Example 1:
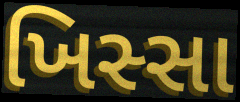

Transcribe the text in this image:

ખિસ્સા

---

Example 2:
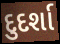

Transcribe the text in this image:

દુદર્શા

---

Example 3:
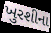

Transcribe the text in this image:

ખુરશીના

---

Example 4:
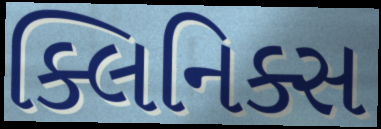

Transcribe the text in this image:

ક્લિનિક્સ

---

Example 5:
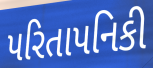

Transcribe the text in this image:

પરિતાપનિકી